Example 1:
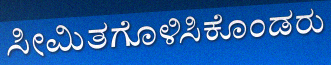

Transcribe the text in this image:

ಸೀಮಿತಗೊಳಿಸಿಕೊಂಡರು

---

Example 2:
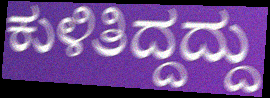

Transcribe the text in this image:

ಕುಳಿತಿದ್ದದ್ದು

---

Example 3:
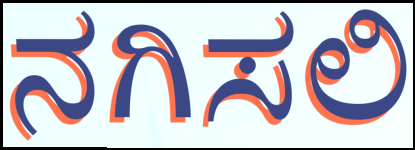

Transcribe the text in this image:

ನಗಿಸಲಿ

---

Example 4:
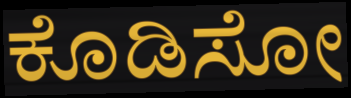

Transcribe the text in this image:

ಕೊಡಿಸೋ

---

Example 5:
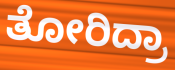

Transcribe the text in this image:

ತೋರಿದ್ರಾ